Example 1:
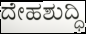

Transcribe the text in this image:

ದೇಹಶುದ್ಧಿ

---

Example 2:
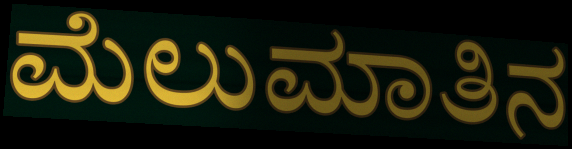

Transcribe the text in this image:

ಮೆಲುಮಾತಿನ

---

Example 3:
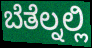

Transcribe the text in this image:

ಬೆತೆಲ್ನಲ್ಲಿ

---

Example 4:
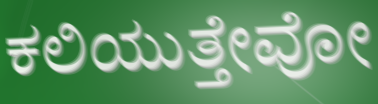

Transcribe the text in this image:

ಕಲಿಯುತ್ತೇವೋ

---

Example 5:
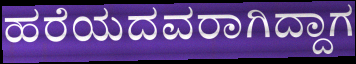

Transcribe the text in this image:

ಹರೆಯದವರಾಗಿದ್ದಾಗ